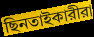
ছিনতাইকারীরা